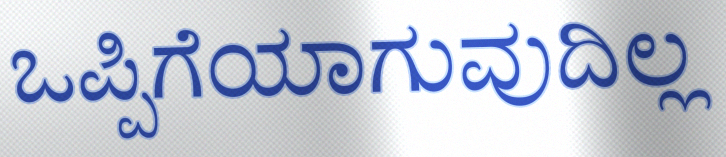
ಒಪ್ಪಿಗೆಯಾಗುವುದಿಲ್ಲ